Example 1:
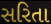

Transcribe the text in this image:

સરિતા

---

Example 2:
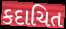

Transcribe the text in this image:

કદાચિત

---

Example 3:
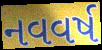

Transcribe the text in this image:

નવવર્ષ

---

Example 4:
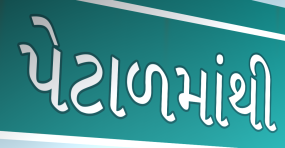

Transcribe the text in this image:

પેટાળમાંથી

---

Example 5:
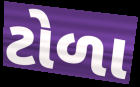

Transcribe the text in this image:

ટોળા